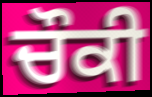
ਚੌਕੀ